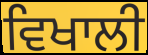
ਵਿਖਾਲੀ